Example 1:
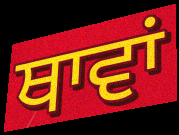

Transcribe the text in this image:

ਥਾਵਾਂ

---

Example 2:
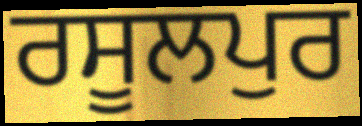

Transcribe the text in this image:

ਰਸੂਲਪੁਰ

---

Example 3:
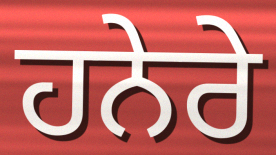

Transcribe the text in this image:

ਹਨੇਰੇ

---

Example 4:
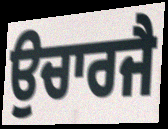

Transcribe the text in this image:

ਉਚਾਰਜੈ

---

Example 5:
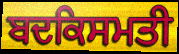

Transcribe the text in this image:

ਬਦਕਿਸਮਤੀ